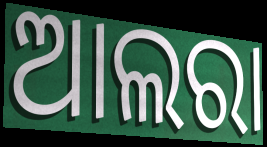
ଆଲରା